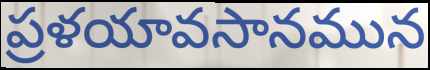
ప్రళయావసానమున